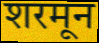
शरमून